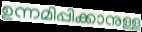
ഉന്നമിപ്പിക്കാനുള്ള